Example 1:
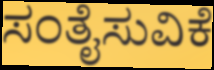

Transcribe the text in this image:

ಸಂತೈಸುವಿಕೆ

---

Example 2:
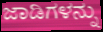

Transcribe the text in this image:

ಜಾಡಿಗಳನ್ನು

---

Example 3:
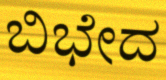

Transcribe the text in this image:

ಬಿಭೇದ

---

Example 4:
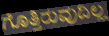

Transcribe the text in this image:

ಗೊತ್ತಿರುವುದಿಲ್ಲ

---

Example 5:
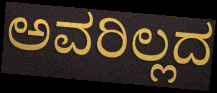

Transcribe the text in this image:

ಅವರಿಲ್ಲದ